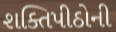
શક્તિપીઠોની